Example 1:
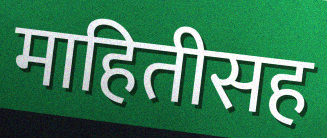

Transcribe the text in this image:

माहितीसह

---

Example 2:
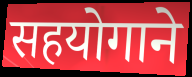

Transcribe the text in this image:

सहयोगाने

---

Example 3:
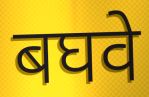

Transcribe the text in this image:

बघवे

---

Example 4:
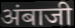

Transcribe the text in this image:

अंबाजी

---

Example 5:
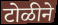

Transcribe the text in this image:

टोळीने